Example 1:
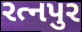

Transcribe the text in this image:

રત્નપુર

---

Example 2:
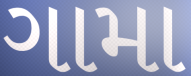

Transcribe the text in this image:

ગામા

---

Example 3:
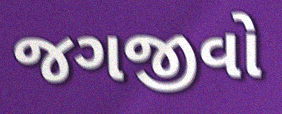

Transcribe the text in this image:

જગજીવો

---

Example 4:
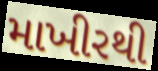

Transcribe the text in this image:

માખીરથી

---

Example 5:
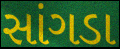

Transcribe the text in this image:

સાંગડા